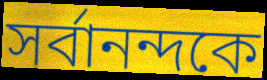
সর্বানন্দকে